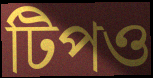
টিপও